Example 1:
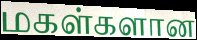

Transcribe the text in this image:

மகள்களான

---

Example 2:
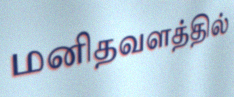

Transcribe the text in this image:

மனிதவளத்தில்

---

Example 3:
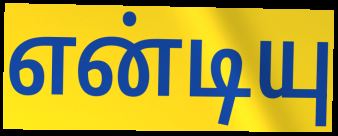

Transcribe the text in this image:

என்டியு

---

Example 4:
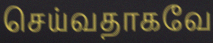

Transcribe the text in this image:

செய்வதாகவே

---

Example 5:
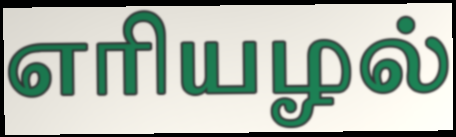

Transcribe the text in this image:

எரியழல்